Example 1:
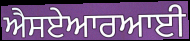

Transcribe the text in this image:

ਐਸਏਆਰਆਈ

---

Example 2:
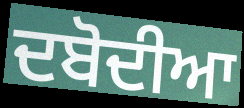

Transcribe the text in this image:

ਦਬੋਦੀਆ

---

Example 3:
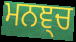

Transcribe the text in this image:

ਮਨਞ੍ਚ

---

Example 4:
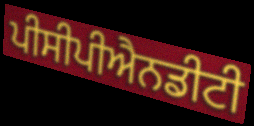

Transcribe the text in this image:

ਪੀਸੀਪੀਐਨਡੀਟੀ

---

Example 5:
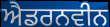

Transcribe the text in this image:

ਐਡਰਨਵੀਨ